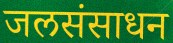
जलसंसाधन